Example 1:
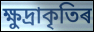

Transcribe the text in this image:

ক্ষুদ্ৰাকৃতিৰ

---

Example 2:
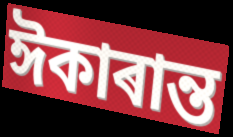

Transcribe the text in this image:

ঈকাৰান্ত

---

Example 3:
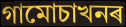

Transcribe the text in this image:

গামোচাখনৰ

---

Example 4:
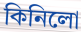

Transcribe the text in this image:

কিনিলো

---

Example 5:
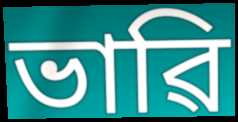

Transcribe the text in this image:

ভাৱি